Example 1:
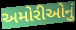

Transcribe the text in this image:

અમોરીઓનું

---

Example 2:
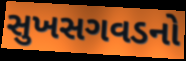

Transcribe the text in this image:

સુખસગવડનો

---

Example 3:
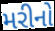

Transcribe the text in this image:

મરીનો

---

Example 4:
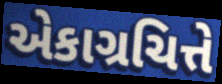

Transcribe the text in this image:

એકાગ્રચિત્તે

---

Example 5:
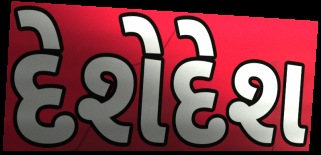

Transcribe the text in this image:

દેશેદેશ